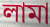
লামা